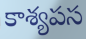
కాశ్యపస